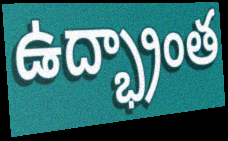
ఉద్భ్రాంత